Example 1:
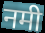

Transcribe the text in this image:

नमी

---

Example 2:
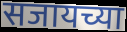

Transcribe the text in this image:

सजायच्या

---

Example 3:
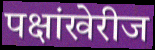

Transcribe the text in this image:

पक्षांखेरीज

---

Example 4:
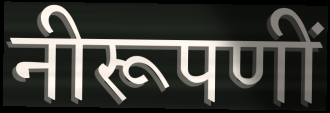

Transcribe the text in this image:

नीरूपणीं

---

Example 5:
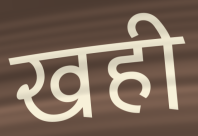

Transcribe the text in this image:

खही